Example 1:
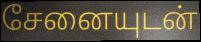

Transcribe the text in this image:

சேனையுடன்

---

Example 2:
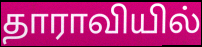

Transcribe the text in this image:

தாராவியில்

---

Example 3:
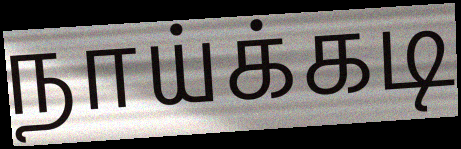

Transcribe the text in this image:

நாய்க்கடி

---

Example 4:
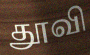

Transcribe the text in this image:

தூவி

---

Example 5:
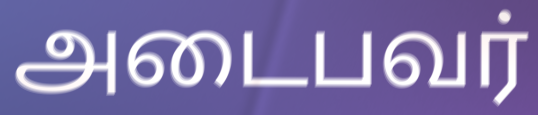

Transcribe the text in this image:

அடைபவர்